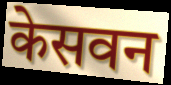
केसवन